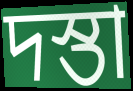
দস্তা